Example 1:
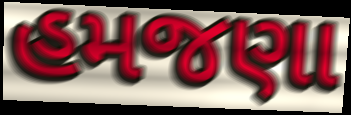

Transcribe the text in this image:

હમજણા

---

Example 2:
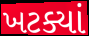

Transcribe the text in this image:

ખટક્યાં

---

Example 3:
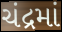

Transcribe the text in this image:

ચંદ્રમાં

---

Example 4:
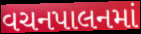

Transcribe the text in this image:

વચનપાલનમાં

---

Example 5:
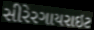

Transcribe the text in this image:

સીરેરગાયરાઇટ